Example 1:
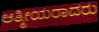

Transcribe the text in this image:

ಆತ್ಮೀಯರಾದರು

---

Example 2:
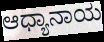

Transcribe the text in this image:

ಆಧ್ಯಾನಾಯ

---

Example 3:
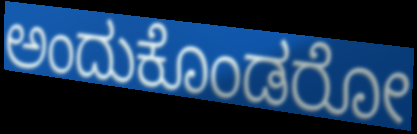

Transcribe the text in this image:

ಅಂದುಕೊಂಡರೋ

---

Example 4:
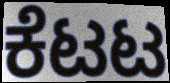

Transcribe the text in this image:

ಕೆಟಟ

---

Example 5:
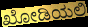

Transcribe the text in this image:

ಖೋಡಿಯಲಿ